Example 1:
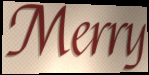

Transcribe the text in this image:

Merry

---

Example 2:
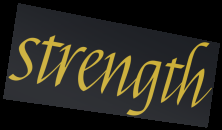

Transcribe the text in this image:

strength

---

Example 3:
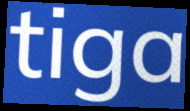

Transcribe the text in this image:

tiga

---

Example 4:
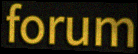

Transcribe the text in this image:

forum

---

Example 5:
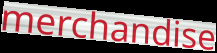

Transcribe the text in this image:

merchandise